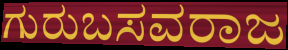
ಗುರುಬಸವರಾಜ